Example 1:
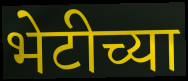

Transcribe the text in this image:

भेटीच्या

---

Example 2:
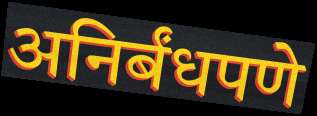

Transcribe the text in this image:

अनिर्बंधपणे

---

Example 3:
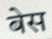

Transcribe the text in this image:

बेस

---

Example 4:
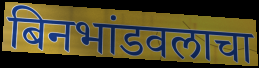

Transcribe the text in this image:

बिनभांडवलाचा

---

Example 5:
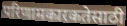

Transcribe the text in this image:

परिणामकारकतेसाठी